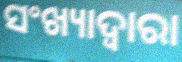
ସଂଖ୍ୟାଦ୍ଵାରା